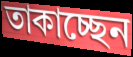
তাকাচ্ছেন